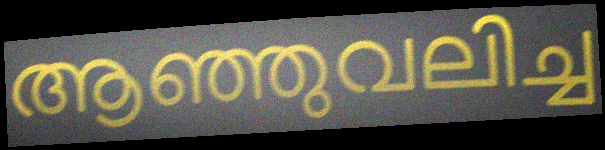
ആഞ്ഞുവലിച്ച